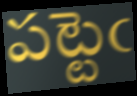
పట్టెఁ